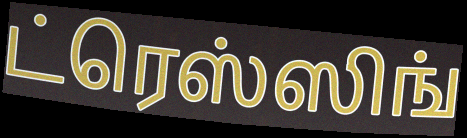
ட்ரெஸ்ஸிங்